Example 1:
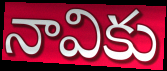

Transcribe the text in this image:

నావికు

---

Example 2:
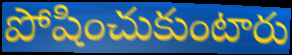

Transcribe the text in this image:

పోషించుకుంటారు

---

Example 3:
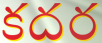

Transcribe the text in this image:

కదర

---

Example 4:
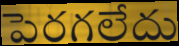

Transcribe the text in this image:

పెరగలేదు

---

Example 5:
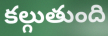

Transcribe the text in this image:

కల్గుతుంది